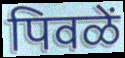
पिवळें